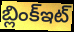
బ్లింక్ఇట్